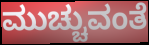
ಮುಚ್ಚುವಂತೆ